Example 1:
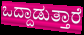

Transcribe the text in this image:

ಒದ್ದಾಡುತ್ತಾರೆ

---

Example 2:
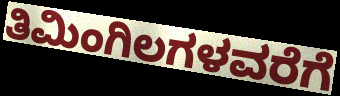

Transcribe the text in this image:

ತಿಮಿಂಗಿಲಗಳವರೆಗೆ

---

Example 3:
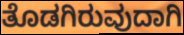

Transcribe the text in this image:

ತೊಡಗಿರುವುದಾಗಿ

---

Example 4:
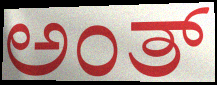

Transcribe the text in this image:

ಅಂತ್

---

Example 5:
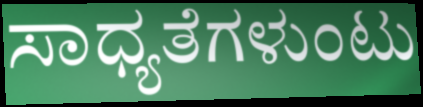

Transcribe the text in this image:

ಸಾಧ್ಯತೆಗಳುಂಟು